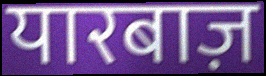
यारबाज़